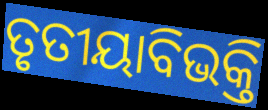
ତୃତୀୟାବିଭକ୍ତି